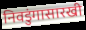
निवडुंगासारखी